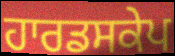
ਹਾਰਡਸਕੇਪ